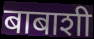
बाबाशी